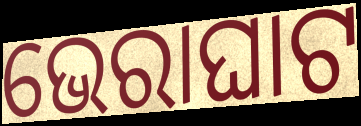
ଭେରାଘାଟ